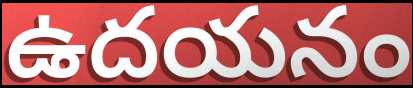
ఉదయనం